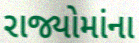
રાજ્યોમાંના